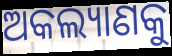
ଅକଲ୍ୟାଣକୁ